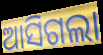
ଆସିଗଲା